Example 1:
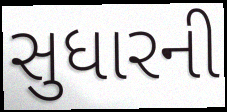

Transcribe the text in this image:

સુધારની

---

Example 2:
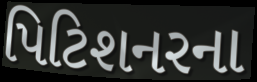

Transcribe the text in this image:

પિટિશનરના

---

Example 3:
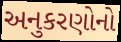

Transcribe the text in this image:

અનુકરણોનો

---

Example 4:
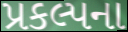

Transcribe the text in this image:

પ્રકલ્પના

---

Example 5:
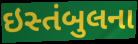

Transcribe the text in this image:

ઇસ્તંબુલના